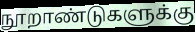
நூறாண்டுகளுக்கு